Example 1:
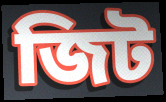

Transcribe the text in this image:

জিট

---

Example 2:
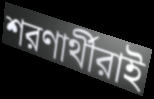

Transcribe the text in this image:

শরণার্থীরাই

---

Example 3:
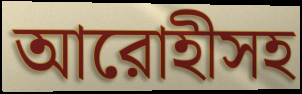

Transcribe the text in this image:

আরোহীসহ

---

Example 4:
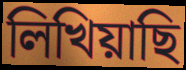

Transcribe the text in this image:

লিখিয়াছি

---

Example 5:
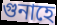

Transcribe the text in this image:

গুনাহে